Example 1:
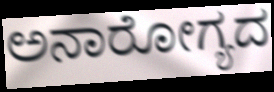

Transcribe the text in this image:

ಅನಾರೋಗ್ಯದ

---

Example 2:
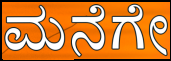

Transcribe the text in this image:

ಮನೆಗೇ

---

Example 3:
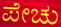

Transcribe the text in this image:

ಪೇಚು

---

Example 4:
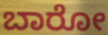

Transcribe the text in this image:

ಬಾರೋ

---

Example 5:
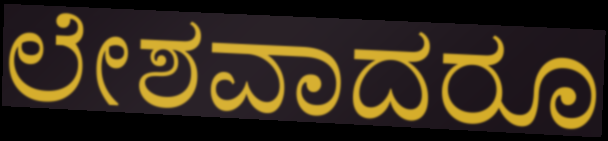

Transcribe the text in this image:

ಲೇಶವಾದರೂ